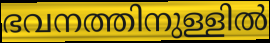
ഭവനത്തിനുള്ളിൽ